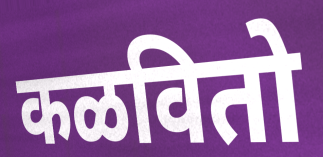
कळवितो